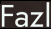
Fazl